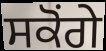
ਸਕੋਂਗੇ